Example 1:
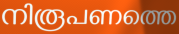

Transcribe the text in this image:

നിരൂപണത്തെ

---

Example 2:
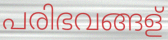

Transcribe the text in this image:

പരിഭവങ്ങള്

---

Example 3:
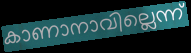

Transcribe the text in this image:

കാണാനാവില്ലെന്ന്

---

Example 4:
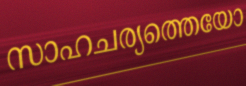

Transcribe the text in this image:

സാഹചര്യത്തെയോ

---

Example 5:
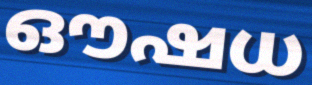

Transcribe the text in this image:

ഔഷധ